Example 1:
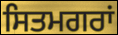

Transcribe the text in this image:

ਸਿਤਮਗਰਾਂ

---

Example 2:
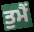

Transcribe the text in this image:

ਤੁਮੈਂ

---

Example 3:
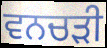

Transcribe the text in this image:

ਵਨਚੜੀ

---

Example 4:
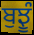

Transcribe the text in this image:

ਬੁਝੂੰ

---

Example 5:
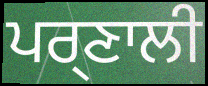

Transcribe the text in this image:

ਪਰ੍ਣਾਲੀ